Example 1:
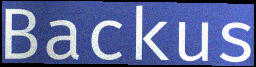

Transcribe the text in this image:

Backus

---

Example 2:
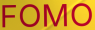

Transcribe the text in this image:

FOMO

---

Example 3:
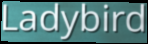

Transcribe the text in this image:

Ladybird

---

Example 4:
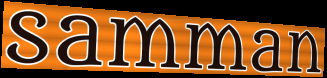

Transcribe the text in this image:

samman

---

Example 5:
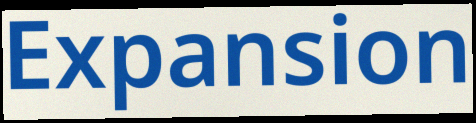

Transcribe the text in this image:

Expansion